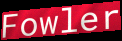
Fowler